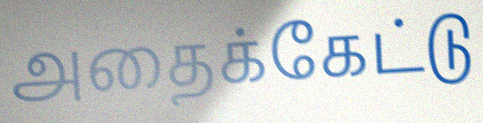
அதைக்கேட்டு